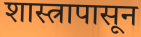
शास्त्रापासून